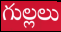
గుల్లలు